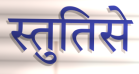
स्तुतिसे